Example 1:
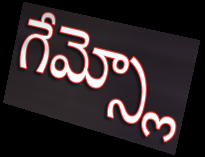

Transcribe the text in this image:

గేమ్స్లో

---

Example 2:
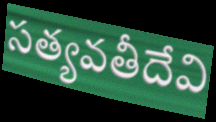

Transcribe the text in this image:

సత్యవతీదేవి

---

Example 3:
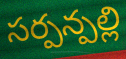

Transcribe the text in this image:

సర్పన్పల్లి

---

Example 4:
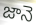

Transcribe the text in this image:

జానె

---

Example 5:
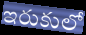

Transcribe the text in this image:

ఇరుకులో